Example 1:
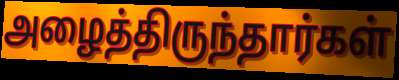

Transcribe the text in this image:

அழைத்திருந்தார்கள்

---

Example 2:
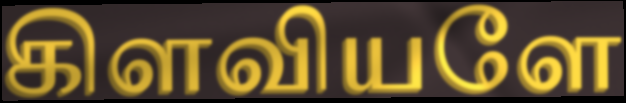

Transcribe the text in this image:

கிளவியளே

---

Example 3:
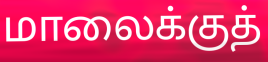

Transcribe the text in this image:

மாலைக்குத்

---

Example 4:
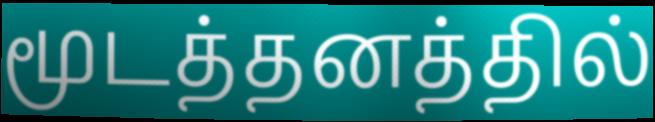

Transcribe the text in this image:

மூடத்தனத்தில்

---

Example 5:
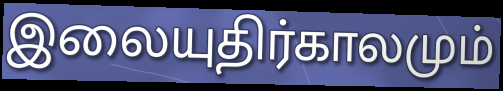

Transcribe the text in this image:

இலையுதிர்காலமும்